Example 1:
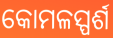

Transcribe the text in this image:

କୋମଳସ୍ପର୍ଶ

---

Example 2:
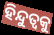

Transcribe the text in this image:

ହିନ୍ଦୁତ୍ୱକୁ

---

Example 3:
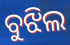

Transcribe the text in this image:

ବୁଝିଲ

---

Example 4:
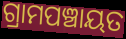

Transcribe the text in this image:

ଗ୍ରାମପଞ୍ଚାୟତ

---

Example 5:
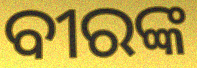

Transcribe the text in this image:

ବୀରଙ୍କ